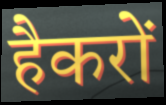
हैकरों